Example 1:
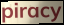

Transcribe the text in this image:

piracy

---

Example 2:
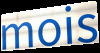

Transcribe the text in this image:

mois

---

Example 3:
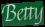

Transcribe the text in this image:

Betty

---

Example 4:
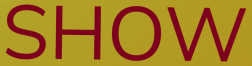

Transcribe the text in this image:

SHOW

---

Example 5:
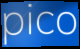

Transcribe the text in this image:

pico